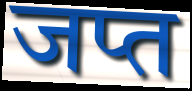
जप्त